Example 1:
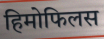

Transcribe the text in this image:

हिमोफिलस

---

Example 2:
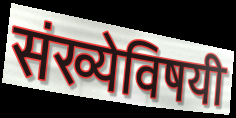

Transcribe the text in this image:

संख्येविषयी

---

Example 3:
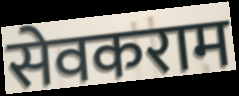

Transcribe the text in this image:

सेवकराम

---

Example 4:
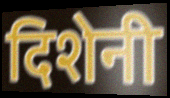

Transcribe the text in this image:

दिशेनी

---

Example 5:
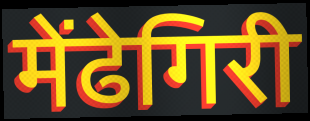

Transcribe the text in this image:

मेंढेगिरी